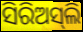
ସିରିଅସ୍‌ଲି